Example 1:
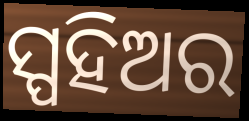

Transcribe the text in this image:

ସ୍ପହିଅର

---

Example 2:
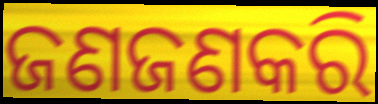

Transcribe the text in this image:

ଜଣଜଣକରି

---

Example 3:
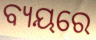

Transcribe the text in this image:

ବ୍ୟୟରେ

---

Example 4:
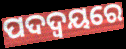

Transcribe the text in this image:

ପଦଦ୍ୱୟରେ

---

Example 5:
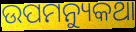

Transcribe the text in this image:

ଉପମନ୍ୟୁକଥା